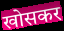
खोसकर